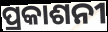
ପ୍ରକାଶନୀ